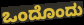
ಒಂದೊಂದು